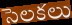
సెలకలు